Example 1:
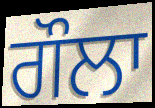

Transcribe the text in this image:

ਗੌਲਾ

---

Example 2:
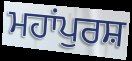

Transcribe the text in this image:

ਮਹਾਂਪੁਰਸ਼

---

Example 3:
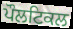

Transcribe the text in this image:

ਪੌਲਟਿਕਲ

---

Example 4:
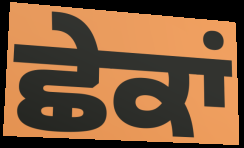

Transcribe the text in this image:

ਛੇਕਾਂ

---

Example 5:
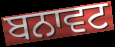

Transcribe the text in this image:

ਬਨਾਵਟ